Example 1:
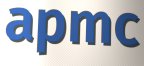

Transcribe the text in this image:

apmc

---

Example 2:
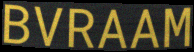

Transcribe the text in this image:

BVRAAM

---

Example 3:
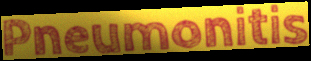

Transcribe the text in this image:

Pneumonitis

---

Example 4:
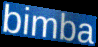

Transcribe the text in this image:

bimba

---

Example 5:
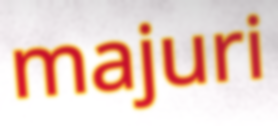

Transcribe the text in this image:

majuri